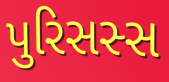
પુરિસસ્સ